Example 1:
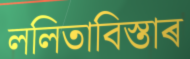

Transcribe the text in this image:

ললিতাবিস্তাৰ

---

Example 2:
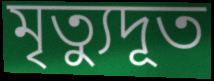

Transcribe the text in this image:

মৃত্যুদূত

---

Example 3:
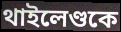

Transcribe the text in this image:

থাইলেণ্ডকে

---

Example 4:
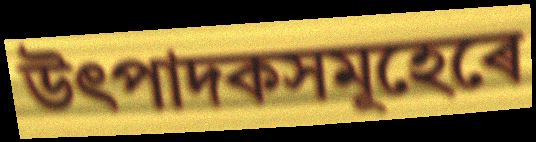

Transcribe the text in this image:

উৎপাদকসমূহেৰে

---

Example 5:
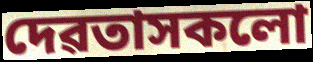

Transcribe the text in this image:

দেৱতাসকলো